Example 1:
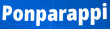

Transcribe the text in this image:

Ponparappi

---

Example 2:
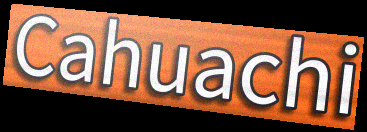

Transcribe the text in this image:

Cahuachi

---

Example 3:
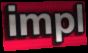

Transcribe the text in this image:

impl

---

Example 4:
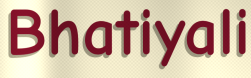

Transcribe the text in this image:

Bhatiyali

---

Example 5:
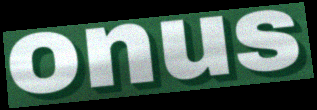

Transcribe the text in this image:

onus